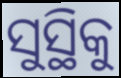
ସୁସ୍ଥିକୁ